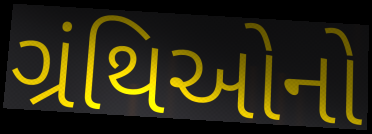
ગ્રંથિઓનો